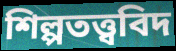
শিল্পতত্ত্ববিদ